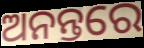
ଅନନ୍ତରେ